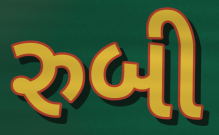
રુબી